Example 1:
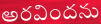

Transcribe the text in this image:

అరవిందను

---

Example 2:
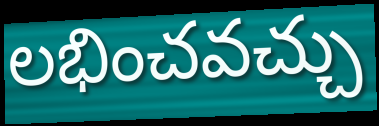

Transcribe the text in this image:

లభించవచ్చు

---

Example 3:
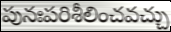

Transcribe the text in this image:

పునఃపరిశీలించవచ్చు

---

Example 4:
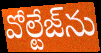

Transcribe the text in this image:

వోల్టేజ్‌ను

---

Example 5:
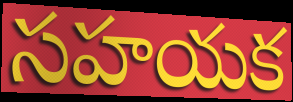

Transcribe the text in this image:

సహయక